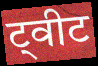
ट्‌वीट